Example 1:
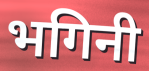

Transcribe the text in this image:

भगिनी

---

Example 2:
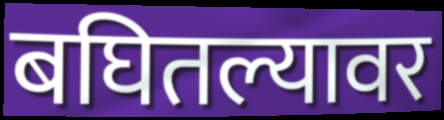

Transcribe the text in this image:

बघितल्यावर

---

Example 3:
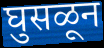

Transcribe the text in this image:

घुसळून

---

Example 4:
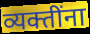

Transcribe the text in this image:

व्यक्‍तींना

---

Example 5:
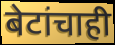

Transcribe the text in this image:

बेटांचाही